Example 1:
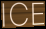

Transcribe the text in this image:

ICE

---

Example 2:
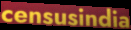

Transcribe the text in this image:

censusindia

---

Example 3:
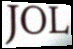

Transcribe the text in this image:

JOL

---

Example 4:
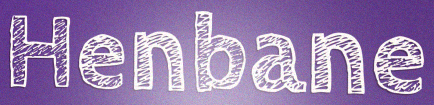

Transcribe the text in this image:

Henbane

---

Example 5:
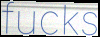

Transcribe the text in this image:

fucks